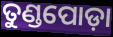
ତୁଣ୍ଡପୋଡ଼ା